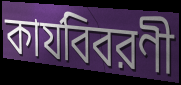
কার্যবিবরণী